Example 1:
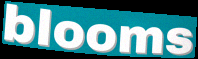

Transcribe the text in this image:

blooms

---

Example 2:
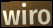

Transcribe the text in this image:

wiro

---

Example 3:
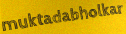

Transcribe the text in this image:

muktadabholkar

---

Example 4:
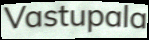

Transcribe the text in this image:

Vastupala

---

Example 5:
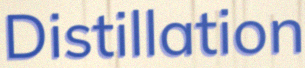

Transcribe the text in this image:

Distillation